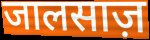
जालसाज़